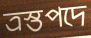
ত্রস্তপদে